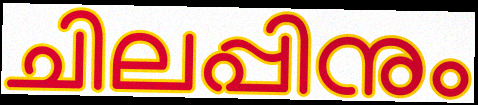
ചിലപ്പിനും